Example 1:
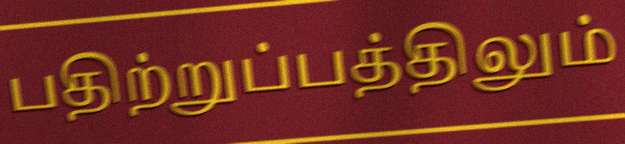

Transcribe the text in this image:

பதிற்றுப்பத்திலும்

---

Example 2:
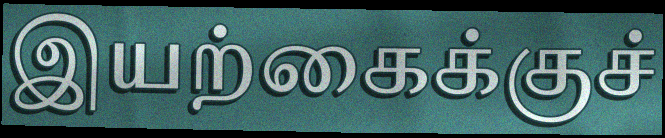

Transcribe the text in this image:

இயற்கைக்குச்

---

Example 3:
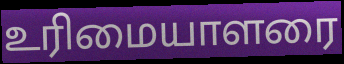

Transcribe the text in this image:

உரிமையாளரை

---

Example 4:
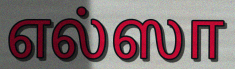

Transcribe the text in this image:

எல்ஸா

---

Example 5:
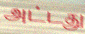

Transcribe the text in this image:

அட்டது